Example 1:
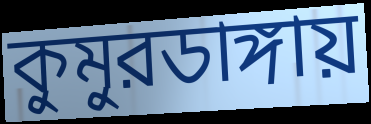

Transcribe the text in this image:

কুমুরডাঙ্গায়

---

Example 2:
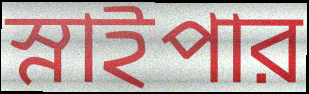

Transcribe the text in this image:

স্নাইপার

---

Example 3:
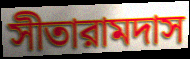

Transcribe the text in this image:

সীতারামদাস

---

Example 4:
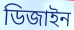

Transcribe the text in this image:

ডিজাইন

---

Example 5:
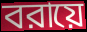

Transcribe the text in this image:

বরায়ে